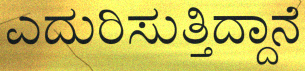
ಎದುರಿಸುತ್ತಿದ್ದಾನೆ